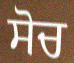
ਸੋਚ